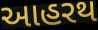
આહરથ